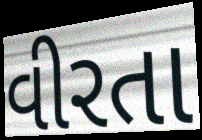
વીરતા